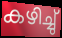
കഴിച്ചു്